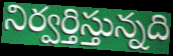
నిర్వర్తిస్తున్నది